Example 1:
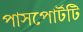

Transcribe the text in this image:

পাসপোর্টটি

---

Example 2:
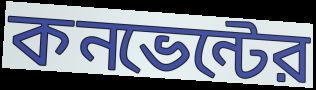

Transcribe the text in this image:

কনভেন্টের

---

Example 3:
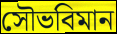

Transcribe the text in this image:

সৌভবিমান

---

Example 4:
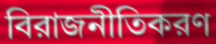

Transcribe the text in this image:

বিরাজনীতিকরণ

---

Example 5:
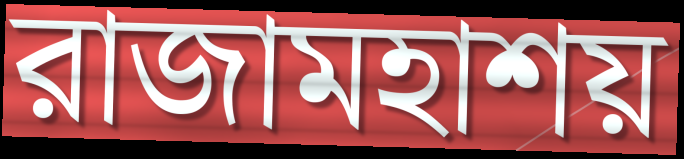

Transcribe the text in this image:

রাজামহাশয়